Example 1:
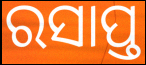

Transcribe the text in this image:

ରସାପ୍ତ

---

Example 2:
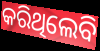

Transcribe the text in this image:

କରିଥିଲେବି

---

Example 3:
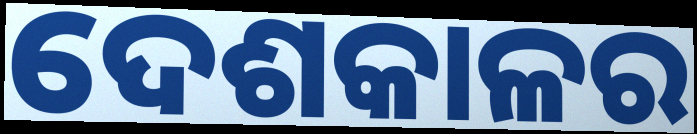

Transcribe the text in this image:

ଦେଶକାଳର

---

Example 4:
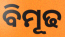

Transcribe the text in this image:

ବିମୂଢ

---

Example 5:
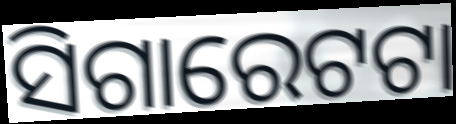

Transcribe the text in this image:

ସିଗାରେଟଟା